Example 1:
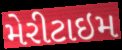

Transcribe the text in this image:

મેરીટાઇમ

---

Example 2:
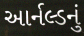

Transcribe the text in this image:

આર્નલ્ડનું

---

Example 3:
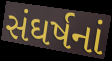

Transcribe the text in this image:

સંઘર્ષનાં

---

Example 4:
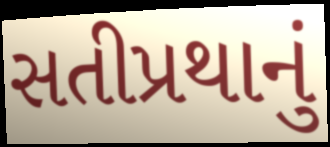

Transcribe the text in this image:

સતીપ્રથાનું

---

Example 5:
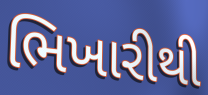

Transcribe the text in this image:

ભિખારીથી